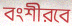
বংশীরবে